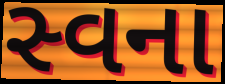
સ્વના